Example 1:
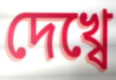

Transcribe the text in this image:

দেখ্বে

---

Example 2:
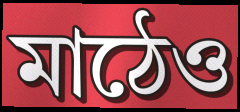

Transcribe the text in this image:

মাঠেও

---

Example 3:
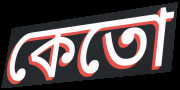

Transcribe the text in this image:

কেতো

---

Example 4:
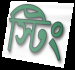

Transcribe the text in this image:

স্টিং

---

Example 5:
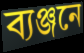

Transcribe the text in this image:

ব্যঞ্জনে